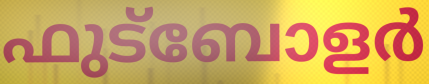
ഫുട്ബോളർ